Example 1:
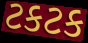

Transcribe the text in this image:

ટકટક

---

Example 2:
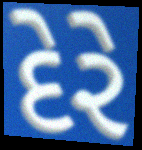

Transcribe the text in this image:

દેરે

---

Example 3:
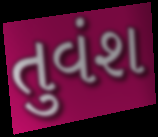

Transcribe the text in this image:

તુવંશ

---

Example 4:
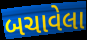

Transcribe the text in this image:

બચાવેલા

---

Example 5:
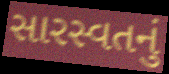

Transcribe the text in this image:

સારસ્વતનું